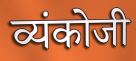
व्यंकोजी